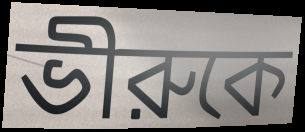
ভীরুকে